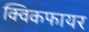
क्विकफायर